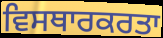
ਵਿਸਥਾਰਕਰਤਾ